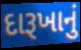
દારૂખાનું